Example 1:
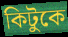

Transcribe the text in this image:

কিটুকে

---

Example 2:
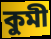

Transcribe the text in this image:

কুমী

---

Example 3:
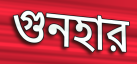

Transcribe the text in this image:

গুনহার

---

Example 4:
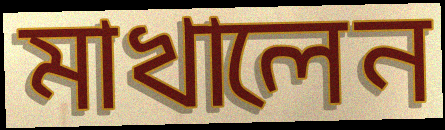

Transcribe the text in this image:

মাখালেন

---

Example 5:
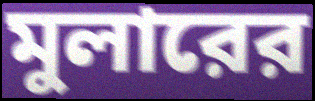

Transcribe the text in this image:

মুলারের